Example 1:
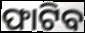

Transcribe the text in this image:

ଫାଟିବ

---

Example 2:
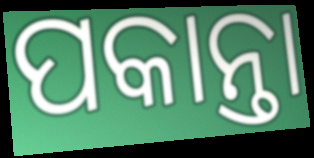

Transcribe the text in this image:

ପକାନ୍ତା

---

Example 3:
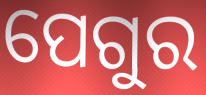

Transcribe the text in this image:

ପେଗୁର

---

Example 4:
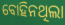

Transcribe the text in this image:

ବୋହିନଥିଲା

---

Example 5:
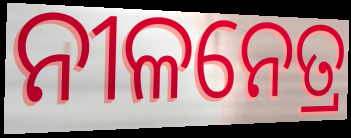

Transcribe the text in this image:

ନୀଳନେତ୍ର